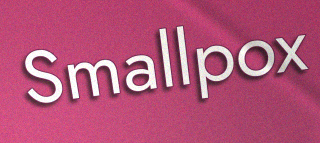
Smallpox